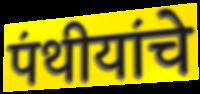
पंथीयांचे